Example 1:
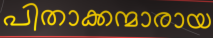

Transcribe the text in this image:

പിതാക്കന്മാരായ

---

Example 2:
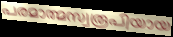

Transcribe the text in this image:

പരമാത്മസ്വരൂപിയായ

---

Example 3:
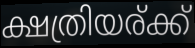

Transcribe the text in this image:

ക്ഷത്രിയര്ക്ക്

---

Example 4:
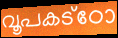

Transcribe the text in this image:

വൂപകട്ഠോ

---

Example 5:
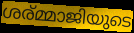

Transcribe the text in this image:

ശര്മ്മാജിയുടെ